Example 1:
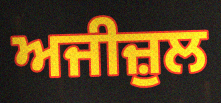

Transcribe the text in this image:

ਅਜੀਜ਼ੁਲ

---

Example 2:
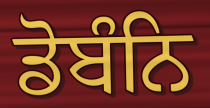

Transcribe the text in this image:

ਡੋਬੰਨਿ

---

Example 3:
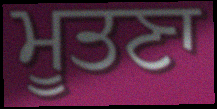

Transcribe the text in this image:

ਮੂਤਣਾ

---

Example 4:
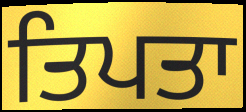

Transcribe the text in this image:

ਤਿਪਤਾ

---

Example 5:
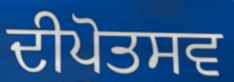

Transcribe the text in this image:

ਦੀਪੋਤਸਵ